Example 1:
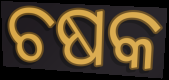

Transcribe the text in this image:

ଚଷକ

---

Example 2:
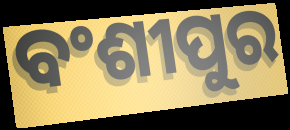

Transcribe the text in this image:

ବଂଶୀପୁର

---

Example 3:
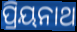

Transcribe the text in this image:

ପ୍ରିୟନାଥ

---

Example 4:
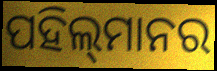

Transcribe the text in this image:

ପହିଲ୍‌ମାନର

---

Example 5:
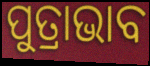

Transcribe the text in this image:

ପୁତ୍ରାଭାବ